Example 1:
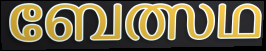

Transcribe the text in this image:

ബേത്സഥ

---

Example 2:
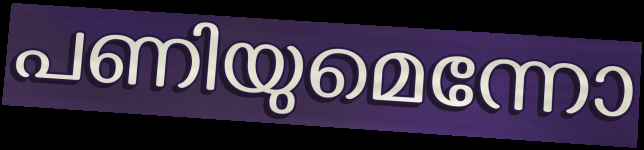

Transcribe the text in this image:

പണിയുമെന്നോ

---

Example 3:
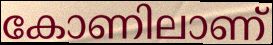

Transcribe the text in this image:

കോണിലാണ്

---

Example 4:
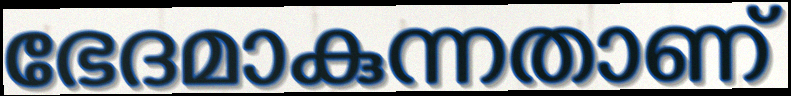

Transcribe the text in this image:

ഭേദമാകുന്നതാണ്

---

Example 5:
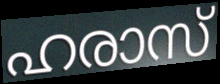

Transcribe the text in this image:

ഹരാസ്